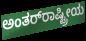
ಅಂತರ್‌ರಾಷ್ಟ್ರೀಯ